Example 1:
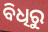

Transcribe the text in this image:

ବିଧିରୁ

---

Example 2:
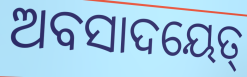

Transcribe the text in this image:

ଅବସାଦୟେତ୍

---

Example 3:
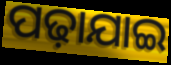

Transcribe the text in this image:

ପଢ଼ାଯାଇ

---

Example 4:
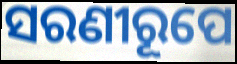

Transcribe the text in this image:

ସରଣୀରୂପେ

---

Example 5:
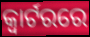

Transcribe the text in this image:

କ୍ବାର୍ଟରରେ